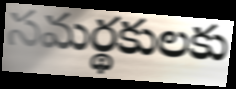
సమర్థకులకు